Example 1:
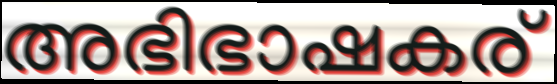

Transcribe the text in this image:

അഭിഭാഷകര്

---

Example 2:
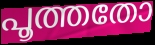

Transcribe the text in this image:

പൂത്തതോ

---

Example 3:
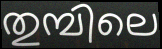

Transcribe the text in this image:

തുമ്പിലെ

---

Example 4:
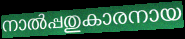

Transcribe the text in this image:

നാൽപ്പതുകാരനായ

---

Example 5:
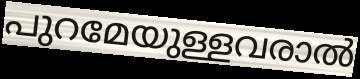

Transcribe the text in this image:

പുറമേയുള്ളവരാൽ